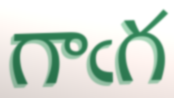
గాఁగ